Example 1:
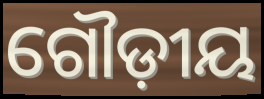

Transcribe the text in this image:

ଗୌଡ଼ୀୟ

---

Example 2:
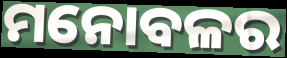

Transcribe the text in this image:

ମନୋବଳର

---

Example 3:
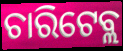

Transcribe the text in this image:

ଚାରିଟେବ୍ଲ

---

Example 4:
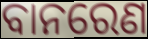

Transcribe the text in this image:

ବାନରେଣ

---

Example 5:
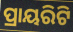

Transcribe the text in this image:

ପ୍ରାୟରିଟି